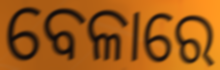
ବେଳାରେ